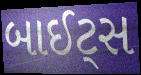
બાઈટ્સ